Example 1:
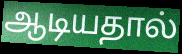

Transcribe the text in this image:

ஆடியதால்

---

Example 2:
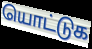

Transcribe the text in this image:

யொட்டுக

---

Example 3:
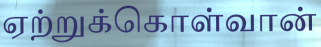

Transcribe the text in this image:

ஏற்றுக்கொள்வான்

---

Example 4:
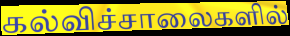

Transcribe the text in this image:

கல்விச்சாலைகளில்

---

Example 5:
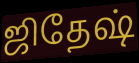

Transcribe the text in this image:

ஜிதேஷ்